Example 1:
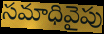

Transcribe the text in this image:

సమాధివైపు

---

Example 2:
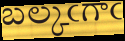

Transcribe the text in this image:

బల్కఁగాఁ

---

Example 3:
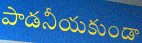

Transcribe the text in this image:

పాడనీయకుండా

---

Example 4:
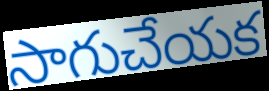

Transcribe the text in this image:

సాగుచేయక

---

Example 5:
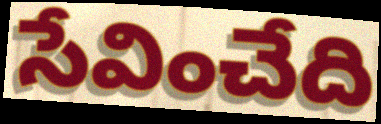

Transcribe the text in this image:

సేవించేది